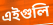
এইগুলি